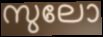
സുലോ